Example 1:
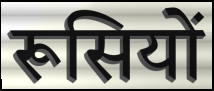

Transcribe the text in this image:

रूसियों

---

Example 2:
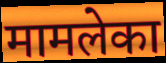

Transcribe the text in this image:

मामलेका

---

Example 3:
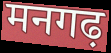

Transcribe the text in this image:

मनगढ़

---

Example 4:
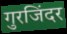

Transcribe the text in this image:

गुरजिंदर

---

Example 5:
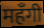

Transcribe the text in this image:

महँगी